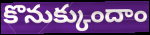
కొనుక్కుందాం